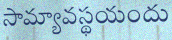
సామ్యావస్థయందు